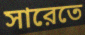
সারেতে